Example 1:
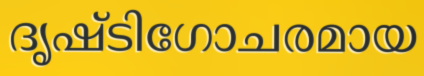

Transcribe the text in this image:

ദൃഷ്ടിഗോചരമായ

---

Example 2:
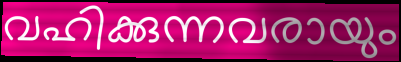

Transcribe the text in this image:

വഹിക്കുന്നവരായും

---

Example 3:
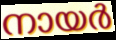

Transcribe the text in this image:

നായർ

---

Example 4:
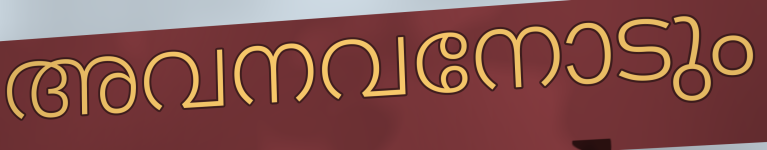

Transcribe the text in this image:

അവനവനോടും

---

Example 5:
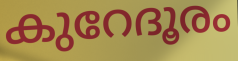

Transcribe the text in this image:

കുറേദൂരം